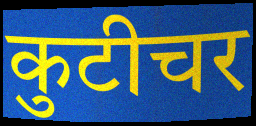
कुटीचर